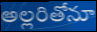
అల్లరితోనూ